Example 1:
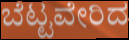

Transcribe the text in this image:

ಬೆಟ್ಟವೇರಿದ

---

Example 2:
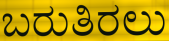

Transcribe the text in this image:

ಬರುತಿರಲು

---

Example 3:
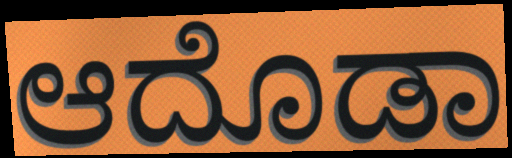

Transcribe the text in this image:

ಆದೊಡಾ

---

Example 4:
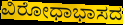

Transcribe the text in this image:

ವಿರೋಧಾಭಾಸದ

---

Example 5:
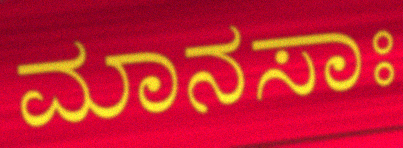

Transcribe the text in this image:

ಮಾನಸಾಃ